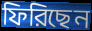
ফিরিছেন